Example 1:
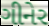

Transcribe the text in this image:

ગીનેર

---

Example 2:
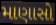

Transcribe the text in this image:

માણાસો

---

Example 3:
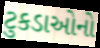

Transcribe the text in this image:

ટુકડાઓનો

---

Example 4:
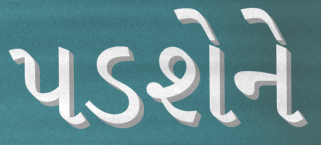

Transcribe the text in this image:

પડશેને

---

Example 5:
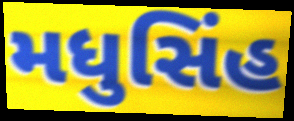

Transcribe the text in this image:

મધુસિંહ